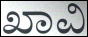
ಖಾವಿ